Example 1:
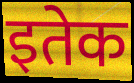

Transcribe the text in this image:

इतेक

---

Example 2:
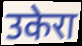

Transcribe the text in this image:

उकेरा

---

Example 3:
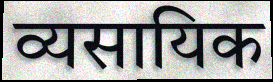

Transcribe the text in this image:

व्यसायिक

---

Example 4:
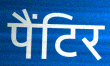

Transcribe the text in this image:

पैंटिर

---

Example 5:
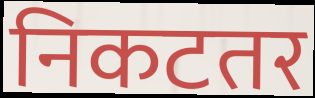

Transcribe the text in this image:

निकटतर